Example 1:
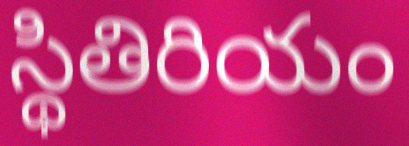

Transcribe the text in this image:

స్థితిరియం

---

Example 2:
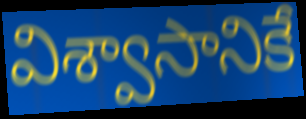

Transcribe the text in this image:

విశ్వాసానికే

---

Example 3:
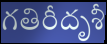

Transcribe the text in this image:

గతిరీదృశీ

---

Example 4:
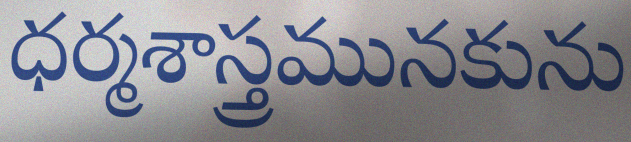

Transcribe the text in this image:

ధర్మశాస్త్రమునకును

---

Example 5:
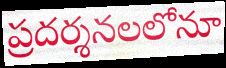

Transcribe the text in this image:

ప్రదర్శనలలోనూ